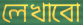
লেখাবো